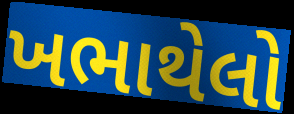
ખભાથેલો